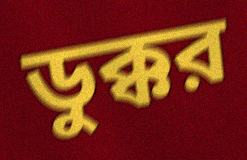
ডুক্কর